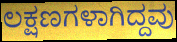
ಲಕ್ಷಣಗಳಾಗಿದ್ದವು